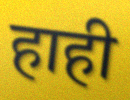
हाही